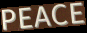
PEACE